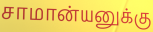
சாமான்யனுக்கு